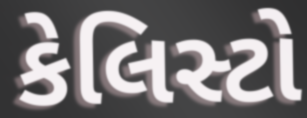
કેલિસ્ટો